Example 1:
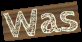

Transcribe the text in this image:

Was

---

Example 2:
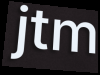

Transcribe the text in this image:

jtm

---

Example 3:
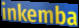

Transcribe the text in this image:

inkemba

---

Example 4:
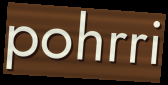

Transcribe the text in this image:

pohrri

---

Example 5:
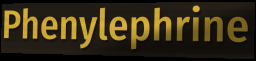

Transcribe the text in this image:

Phenylephrine